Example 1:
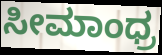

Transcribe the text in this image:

ಸೀಮಾಂಧ್ರ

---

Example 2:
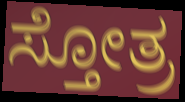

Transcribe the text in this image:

ಸ್ತೋತ್ರ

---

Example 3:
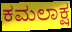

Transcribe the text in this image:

ಕಮಲಾಕ್ಷ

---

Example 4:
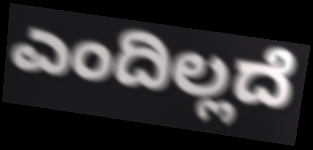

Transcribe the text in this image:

ಎಂದಿಲ್ಲದೆ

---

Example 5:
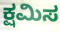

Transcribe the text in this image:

ಕ್ಷಮಿಸ